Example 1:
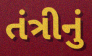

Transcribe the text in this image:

તંત્રીનું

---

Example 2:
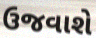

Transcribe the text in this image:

ઉજવાશે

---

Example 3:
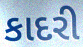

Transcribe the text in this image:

કાદરી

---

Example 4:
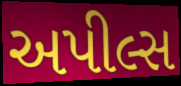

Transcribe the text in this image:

અપીલ્સ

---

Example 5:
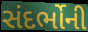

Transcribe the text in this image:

સંદર્ભોની